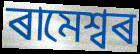
ৰামেশ্বৰ